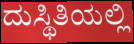
ದುಸ್ಥಿತಿಯಲ್ಲಿ